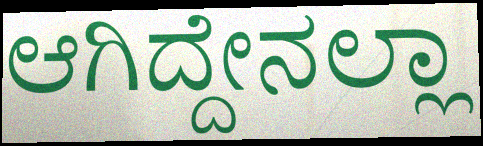
ಆಗಿದ್ದೇನಲ್ಲಾ